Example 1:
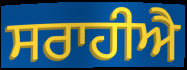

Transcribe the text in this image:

ਸਰਾਹੀਐ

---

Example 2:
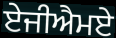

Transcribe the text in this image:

ਏਜੀਐਮਏ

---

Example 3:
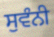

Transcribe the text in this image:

ਸੁਵੰਨੀ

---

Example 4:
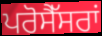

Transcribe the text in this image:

ਪਰੋਸੈੱਸਰਾਂ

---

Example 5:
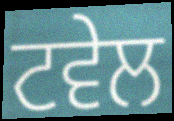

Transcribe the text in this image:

ਟਵੇਲ